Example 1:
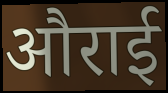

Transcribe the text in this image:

औराई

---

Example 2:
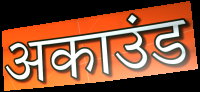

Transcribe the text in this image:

अकाउंड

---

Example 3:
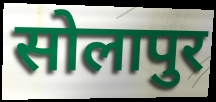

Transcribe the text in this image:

सोलापुर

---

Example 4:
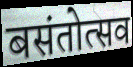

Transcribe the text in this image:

बसंतोत्सव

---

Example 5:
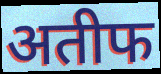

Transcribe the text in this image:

अतीफ